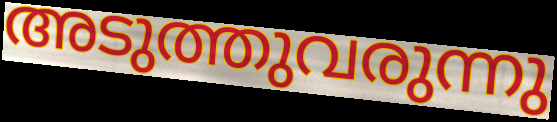
അടുത്തുവരുന്നു